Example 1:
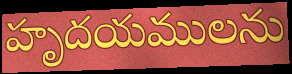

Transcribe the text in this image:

హృదయములను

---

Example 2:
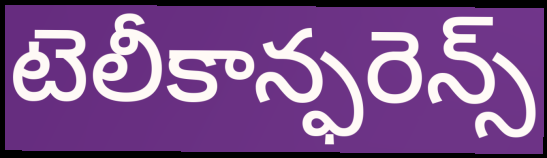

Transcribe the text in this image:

టెలీకాన్ఫరెన్స్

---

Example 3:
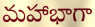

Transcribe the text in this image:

మహాభాగా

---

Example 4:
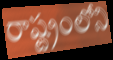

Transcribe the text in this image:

రాష్ట్రంలోని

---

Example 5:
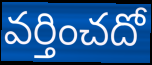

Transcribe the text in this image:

వర్తించదో